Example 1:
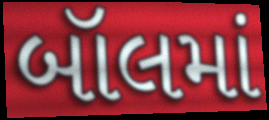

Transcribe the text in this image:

બૉલમાં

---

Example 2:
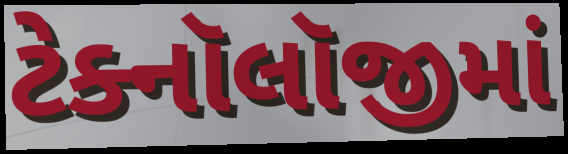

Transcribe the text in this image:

ટેક્નૉલૉજીમાં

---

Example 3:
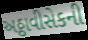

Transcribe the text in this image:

અઠ્ઠાવીસેકની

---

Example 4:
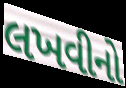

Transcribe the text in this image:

લખવીનો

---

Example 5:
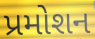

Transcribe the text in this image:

પ્રમોશન